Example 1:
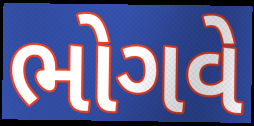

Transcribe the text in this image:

ભોગવે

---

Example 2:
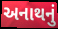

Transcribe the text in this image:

અનાથનું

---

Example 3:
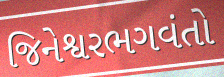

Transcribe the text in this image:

જિનેશ્વરભગવંતો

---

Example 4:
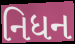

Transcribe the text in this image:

નિધન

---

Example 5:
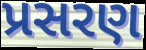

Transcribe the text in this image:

પ્રસરણ